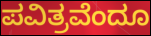
ಪವಿತ್ರವೆಂದೂ